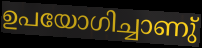
ഉപയോഗിച്ചാണു്